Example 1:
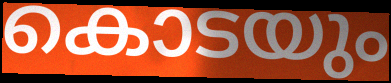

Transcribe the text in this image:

കൊടയും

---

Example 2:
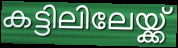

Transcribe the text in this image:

കട്ടിലിലേയ്ക്ക്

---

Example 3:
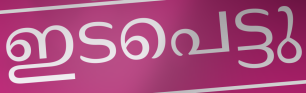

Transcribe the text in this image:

ഇടപെട്ടു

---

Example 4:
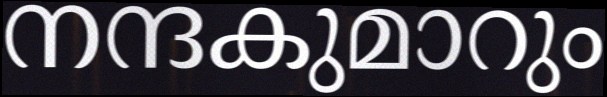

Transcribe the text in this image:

നന്ദകുമാറും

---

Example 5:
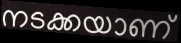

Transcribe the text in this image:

നടക്കയാണ്